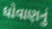
ધોવાણનું